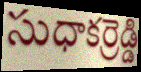
సుధాకర్రెడ్డి